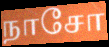
நாசோ